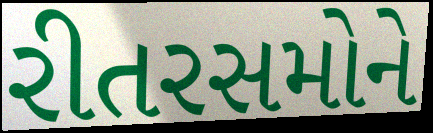
રીતરસમોને